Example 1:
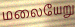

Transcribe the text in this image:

மலையேறு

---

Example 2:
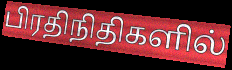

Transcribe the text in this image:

பிரதிநிதிகளில்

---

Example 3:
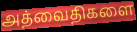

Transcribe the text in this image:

அத்வைதிகளை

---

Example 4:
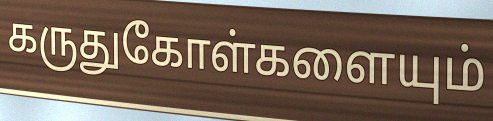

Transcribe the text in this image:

கருதுகோள்களையும்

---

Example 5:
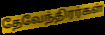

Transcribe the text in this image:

தேவேந்திரர்கள்